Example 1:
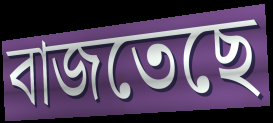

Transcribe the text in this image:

বাজতেছে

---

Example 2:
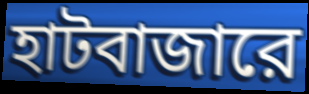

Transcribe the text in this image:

হাটবাজারে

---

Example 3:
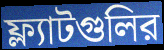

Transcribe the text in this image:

ফ্ল্যাটগুলির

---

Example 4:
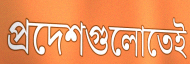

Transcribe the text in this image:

প্রদেশগুলোতেই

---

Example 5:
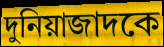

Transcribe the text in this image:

দুনিয়াজাদকে